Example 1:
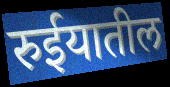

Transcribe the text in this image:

रुईयातील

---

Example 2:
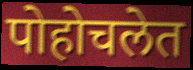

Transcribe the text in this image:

पोहोचलेत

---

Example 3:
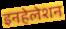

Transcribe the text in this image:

इनहेलेशन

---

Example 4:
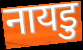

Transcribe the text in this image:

नायडु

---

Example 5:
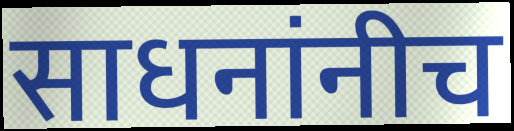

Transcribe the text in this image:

साधनांनीच